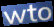
wto